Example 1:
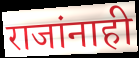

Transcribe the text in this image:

राजांनाही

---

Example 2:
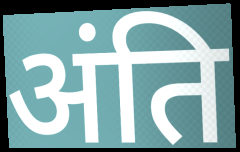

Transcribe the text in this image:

अंति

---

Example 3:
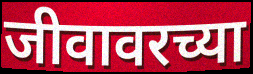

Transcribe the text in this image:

जीवावरच्या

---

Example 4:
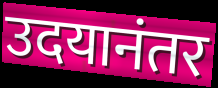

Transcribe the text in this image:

उदयानंतर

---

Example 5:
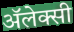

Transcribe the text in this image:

ॲलेक्सी